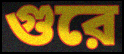
গুরে